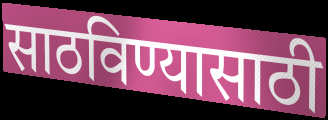
साठविण्यासाठी